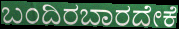
ಬಂದಿರಬಾರದೇಕೆ